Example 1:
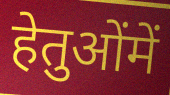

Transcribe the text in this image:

हेतुओंमें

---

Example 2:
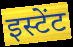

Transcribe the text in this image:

इस्टेंट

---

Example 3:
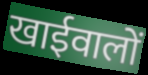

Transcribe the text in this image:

खाईवालों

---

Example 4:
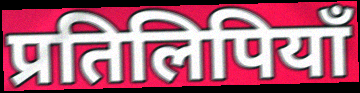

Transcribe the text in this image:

प्रतिलिपियाँ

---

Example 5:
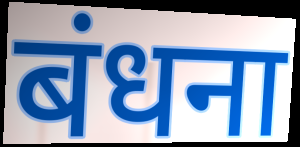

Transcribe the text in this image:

बंधना